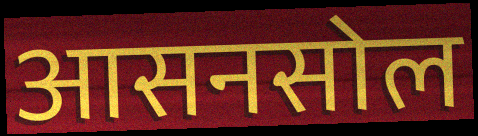
आसनसोल